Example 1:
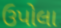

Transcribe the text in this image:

ઉપોલા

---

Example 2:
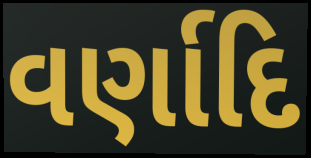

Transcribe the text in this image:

વર્ણાદિ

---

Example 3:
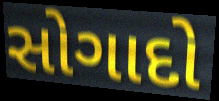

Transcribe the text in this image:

સોગાદો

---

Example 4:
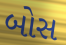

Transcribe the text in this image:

બોસ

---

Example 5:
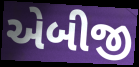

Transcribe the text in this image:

એબીજી